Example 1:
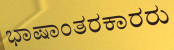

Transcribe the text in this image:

ಭಾಷಾಂತರಕಾರರು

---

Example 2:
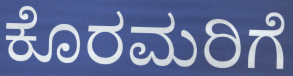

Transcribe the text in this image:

ಕೊರಮರಿಗೆ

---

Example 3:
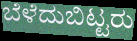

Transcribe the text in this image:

ಬೆಳೆದುಬಿಟ್ಟರು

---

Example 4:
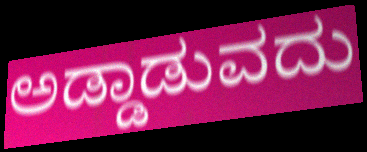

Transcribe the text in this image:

ಅಡ್ಡಾಡುವದು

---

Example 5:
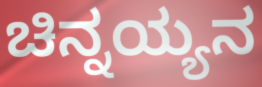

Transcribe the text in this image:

ಚಿನ್ನಯ್ಯನ